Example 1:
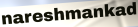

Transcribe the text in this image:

nareshmankad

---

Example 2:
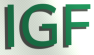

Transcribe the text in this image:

IGF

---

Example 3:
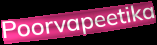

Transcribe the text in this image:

Poorvapeetika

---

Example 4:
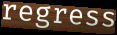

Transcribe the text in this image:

regress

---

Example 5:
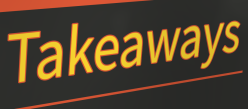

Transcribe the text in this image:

Takeaways